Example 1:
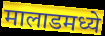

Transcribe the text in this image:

मालाडमध्ये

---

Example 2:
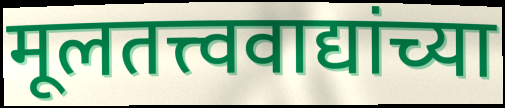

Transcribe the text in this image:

मूलतत्त्ववाद्यांच्या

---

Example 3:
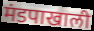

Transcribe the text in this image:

मंडपाखाली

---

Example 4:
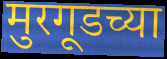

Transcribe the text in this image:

मुरगूडच्या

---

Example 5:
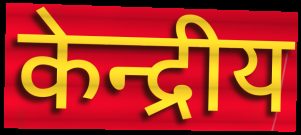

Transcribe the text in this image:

केन्द्रीय